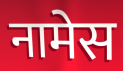
नामेस